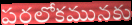
పరలోకమునకు